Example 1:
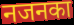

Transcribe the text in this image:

नजनका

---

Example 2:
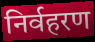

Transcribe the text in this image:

निर्वहरण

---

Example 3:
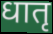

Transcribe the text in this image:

धातृ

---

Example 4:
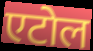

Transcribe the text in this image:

एटोल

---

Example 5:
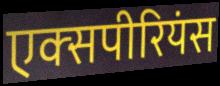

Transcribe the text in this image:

एक्‍सपीरियंस